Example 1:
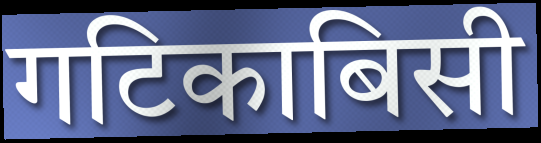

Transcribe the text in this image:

गटिकाबिसी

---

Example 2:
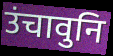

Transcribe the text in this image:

उंचावुनि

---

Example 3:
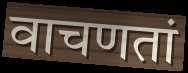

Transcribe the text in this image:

वाचणतां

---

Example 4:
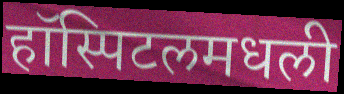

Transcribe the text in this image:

हॉस्पिटलमधली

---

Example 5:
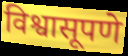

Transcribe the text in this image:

विश्वासूपणे